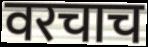
वरचाच